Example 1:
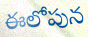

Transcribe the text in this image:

ఈలోపున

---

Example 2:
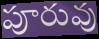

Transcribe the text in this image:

పూరువు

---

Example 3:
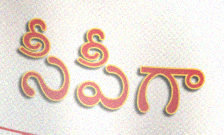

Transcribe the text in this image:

సీపీగా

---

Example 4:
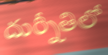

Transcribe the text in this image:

దుర్నీతిలో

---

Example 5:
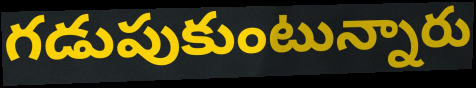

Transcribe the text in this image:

గడుపుకుంటున్నారు